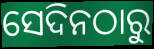
ସେଦିନଠାରୁ